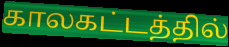
காலகட்டத்தில்